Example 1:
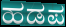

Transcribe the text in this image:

ಹಡಪ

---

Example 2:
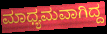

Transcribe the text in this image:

ಮಾಧ್ಯಮವಾಗಿದ್ದ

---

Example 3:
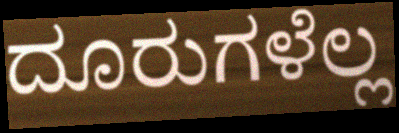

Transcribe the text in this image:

ದೂರುಗಳೆಲ್ಲ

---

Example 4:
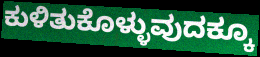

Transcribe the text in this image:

ಕುಳಿತುಕೊಳ್ಳುವುದಕ್ಕೂ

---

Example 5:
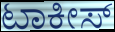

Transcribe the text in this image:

ಟಾಕೀಸ್